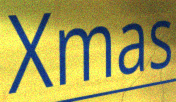
Xmas